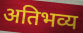
अतिभव्य